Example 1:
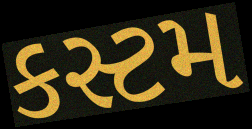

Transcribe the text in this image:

કસ્ટમ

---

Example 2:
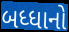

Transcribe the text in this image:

બધ્ધાનો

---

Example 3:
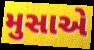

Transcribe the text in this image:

મુસાએ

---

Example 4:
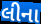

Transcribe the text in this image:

લીના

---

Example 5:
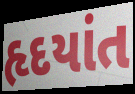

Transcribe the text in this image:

હૃદયાંત